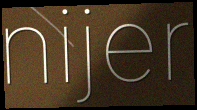
nijer